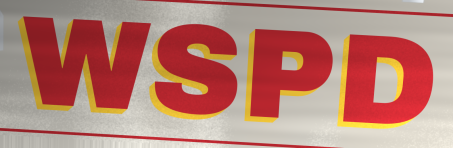
WSPD